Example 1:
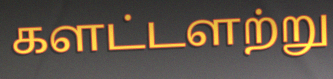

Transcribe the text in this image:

களட்டளற்று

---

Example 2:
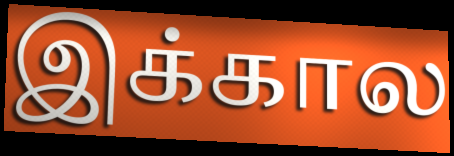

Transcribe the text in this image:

இக்கால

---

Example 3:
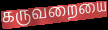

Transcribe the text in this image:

கருவறையை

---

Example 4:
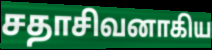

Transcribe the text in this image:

சதாசிவனாகிய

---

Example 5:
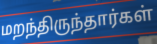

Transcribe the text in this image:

மறந்திருந்தார்கள்